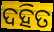
ଦହିତ